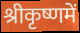
श्रीकृष्णमें